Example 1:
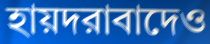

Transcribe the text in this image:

হায়দরাবাদেও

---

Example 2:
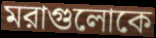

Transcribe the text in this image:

মরাগুলোকে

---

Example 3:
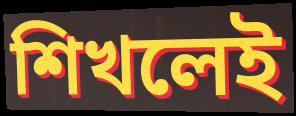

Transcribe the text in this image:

শিখলেই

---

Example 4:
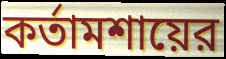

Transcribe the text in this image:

কর্তামশায়ের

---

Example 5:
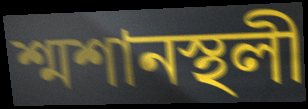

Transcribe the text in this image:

শ্মশানস্থলী